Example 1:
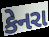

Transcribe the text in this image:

કેનરા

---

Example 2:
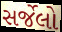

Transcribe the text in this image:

સર્જેલો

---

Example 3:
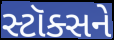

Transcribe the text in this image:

સ્ટૉક્સને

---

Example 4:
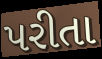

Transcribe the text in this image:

પરીતા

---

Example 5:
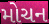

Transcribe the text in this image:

મોચન